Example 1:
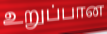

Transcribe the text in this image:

உறுப்பான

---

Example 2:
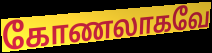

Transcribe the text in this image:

கோணலாகவே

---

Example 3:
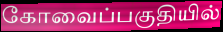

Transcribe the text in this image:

கோவைப்பகுதியில்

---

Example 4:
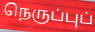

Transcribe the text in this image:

நெருப்புப்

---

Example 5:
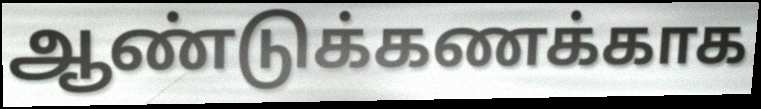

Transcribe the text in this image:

ஆண்டுக்கணக்காக